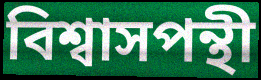
বিশ্বাসপন্থী